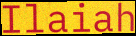
Ilaiah